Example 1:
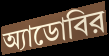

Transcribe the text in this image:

অ্যাডোবির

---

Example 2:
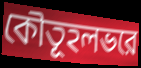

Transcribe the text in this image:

কৌতূহলভরে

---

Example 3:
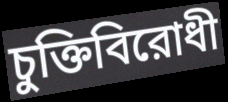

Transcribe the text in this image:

চুক্তিবিরোধী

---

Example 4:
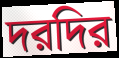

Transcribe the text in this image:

দরদির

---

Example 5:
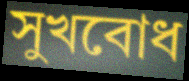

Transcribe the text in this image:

সুখবোধ